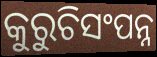
କୁରୁଚିସଂପନ୍ନ